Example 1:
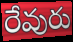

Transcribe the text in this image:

రేవురు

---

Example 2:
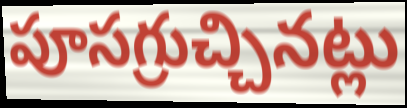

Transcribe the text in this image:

పూసగ్రుచ్చినట్లు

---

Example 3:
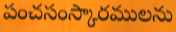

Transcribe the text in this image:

పంచసంస్కారములను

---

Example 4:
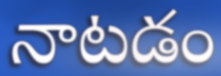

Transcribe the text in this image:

నాటడం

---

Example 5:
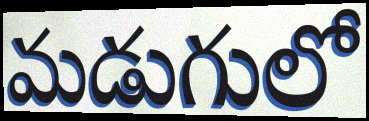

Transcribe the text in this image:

మడుగులో